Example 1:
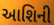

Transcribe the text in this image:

આશિની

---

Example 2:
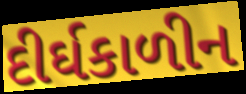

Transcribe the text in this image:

દીર્ઘકાળીન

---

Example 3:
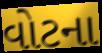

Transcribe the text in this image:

વોટના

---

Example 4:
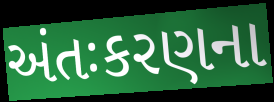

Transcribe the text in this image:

અંતઃકરણના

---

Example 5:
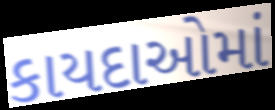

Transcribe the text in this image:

કાયદાઓમાં